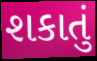
શકાતું